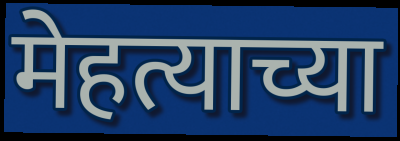
मेहत्याच्या